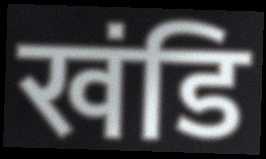
खंडि